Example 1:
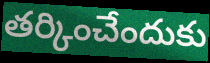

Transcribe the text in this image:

తర్కించేందుకు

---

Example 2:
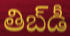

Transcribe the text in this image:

తిబ్‌డీ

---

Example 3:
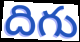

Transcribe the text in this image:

దిగు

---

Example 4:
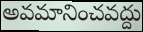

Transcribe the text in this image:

అవమానించవద్దు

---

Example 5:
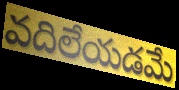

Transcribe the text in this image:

వదిలేయడమే